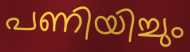
പണിയിച്ചും